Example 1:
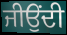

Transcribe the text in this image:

ਜੀਉਂਦੀ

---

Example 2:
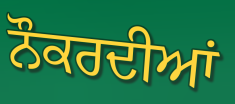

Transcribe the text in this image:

ਨੌਕਰਦੀਆਂ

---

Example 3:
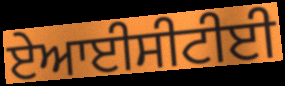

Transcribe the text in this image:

ਏਆਈਸੀਟੀਈ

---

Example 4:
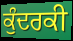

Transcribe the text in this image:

ਕੁੰਦਰਕੀ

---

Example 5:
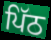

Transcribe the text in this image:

ਪਿੱਠ